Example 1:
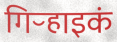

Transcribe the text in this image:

गिऱ्हाइकं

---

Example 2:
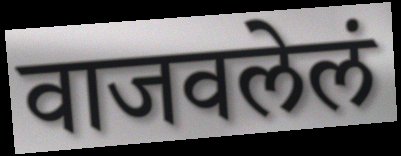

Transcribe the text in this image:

वाजवलेलं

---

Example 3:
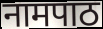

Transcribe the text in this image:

नामपाठ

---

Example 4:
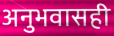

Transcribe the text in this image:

अनुभवासही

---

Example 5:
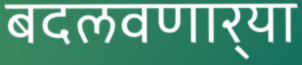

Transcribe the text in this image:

बदलवणार्‍या